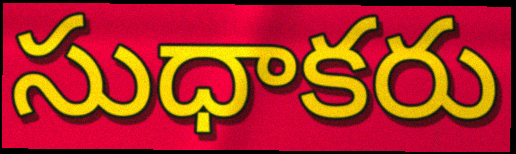
సుధాకరు